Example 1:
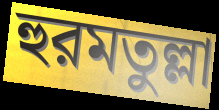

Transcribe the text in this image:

হুরমতুল্লা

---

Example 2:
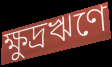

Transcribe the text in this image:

ক্ষুদ্রঋণে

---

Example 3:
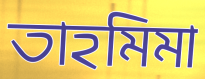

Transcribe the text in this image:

তাহমিমা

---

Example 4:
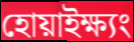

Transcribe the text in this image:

হোয়াইক্ষ্যং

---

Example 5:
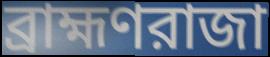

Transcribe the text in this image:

ব্রাহ্মণরাজা